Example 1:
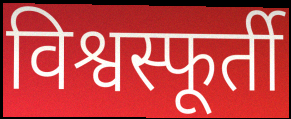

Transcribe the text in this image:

विश्वस्फूर्ती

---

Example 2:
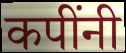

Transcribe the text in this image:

कपींनी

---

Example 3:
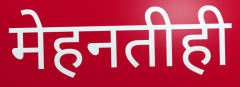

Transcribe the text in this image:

मेहनतीही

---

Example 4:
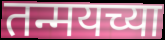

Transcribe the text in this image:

तन्मयच्या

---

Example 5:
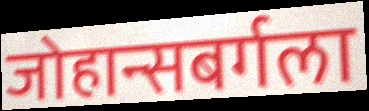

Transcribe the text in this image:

जोहान्सबर्गला